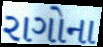
રાગોના